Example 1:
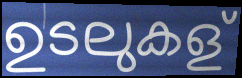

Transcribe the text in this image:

ഉടലുകള്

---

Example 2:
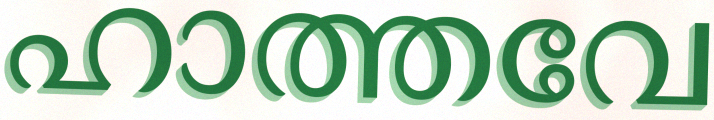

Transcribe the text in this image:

ഹാത്തവേ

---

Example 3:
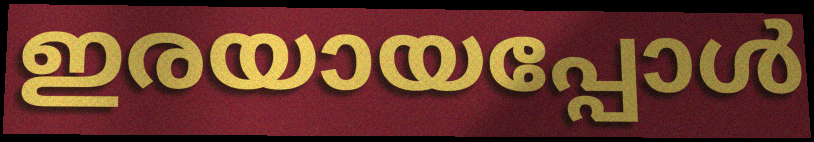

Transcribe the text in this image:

ഇരയായപ്പോൾ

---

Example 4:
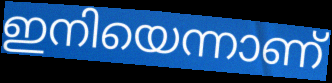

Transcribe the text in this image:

ഇനിയെന്നാണ്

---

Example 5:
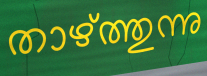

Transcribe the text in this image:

താഴ്ത്തുന്നു